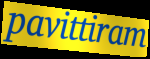
pavittiram